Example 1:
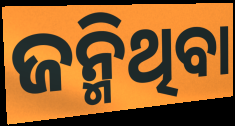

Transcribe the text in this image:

ଜନ୍ମିଥିବା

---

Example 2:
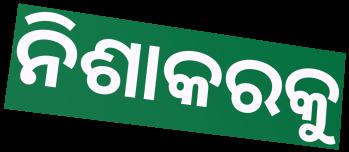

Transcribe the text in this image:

ନିଶାକରକୁ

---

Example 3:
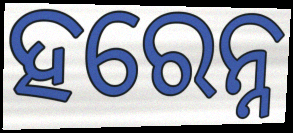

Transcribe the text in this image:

ହରେନ୍ନ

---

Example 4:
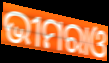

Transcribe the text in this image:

ଭୀମରାଓ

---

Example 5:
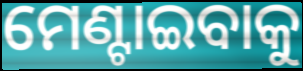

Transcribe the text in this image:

ମେଣ୍ଟାଇବାକୁ